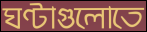
ঘণ্টাগুলোতে